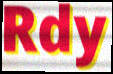
Rdy